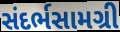
સંદર્ભસામગ્રી